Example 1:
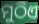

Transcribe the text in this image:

ମୁଠିଏ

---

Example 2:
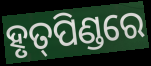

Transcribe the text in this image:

ହୃତ୍‌ପିଣ୍ଡରେ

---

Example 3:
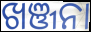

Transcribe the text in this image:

ଖଞ୍ଜନା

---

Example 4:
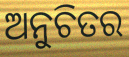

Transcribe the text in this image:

ଅନୁଚିତର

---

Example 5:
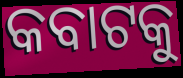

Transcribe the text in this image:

କବାଟକୁ